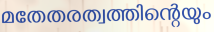
മതേതരത്വത്തിന്റെയും